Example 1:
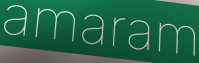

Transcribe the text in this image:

amaram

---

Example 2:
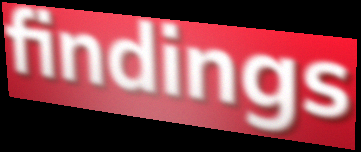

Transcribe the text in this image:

findings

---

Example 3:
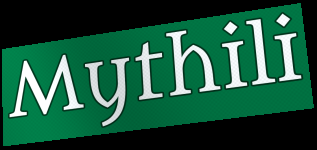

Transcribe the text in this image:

Mythili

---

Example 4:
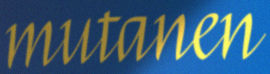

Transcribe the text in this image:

mutanen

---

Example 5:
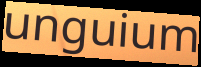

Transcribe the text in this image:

unguium